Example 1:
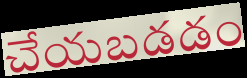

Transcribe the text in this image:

చేయబడడం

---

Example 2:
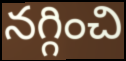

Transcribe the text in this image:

నగ్గించి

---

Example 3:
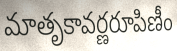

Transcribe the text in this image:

మాతృకావర్ణరూపిణీం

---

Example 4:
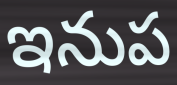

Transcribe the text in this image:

ఇనుప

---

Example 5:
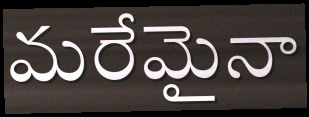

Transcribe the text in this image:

మరేమైనా